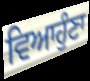
ਵਿਆਹੁੰਣਾ